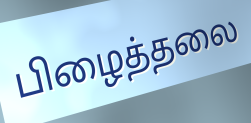
பிழைத்தலை